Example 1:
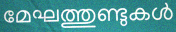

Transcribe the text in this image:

മേഘത്തുണ്ടുകൾ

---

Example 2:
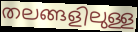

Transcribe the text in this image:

തലങ്ങളിലുള്ള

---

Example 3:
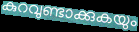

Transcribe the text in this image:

കുറവുണ്ടാക്കുകയും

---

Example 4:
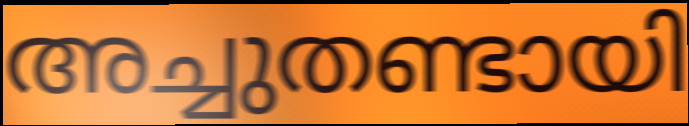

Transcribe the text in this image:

അച്ചുതണ്ടായി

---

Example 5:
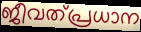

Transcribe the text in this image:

ജീവത്പ്രധാന